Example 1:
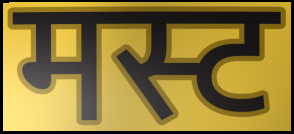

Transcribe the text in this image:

मस्ट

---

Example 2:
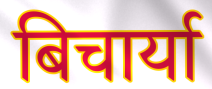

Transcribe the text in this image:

बिचार्या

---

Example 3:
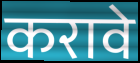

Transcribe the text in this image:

करावे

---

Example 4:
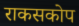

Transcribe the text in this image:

राकसकोप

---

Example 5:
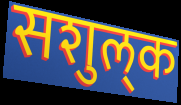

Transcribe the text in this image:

सशुल्क